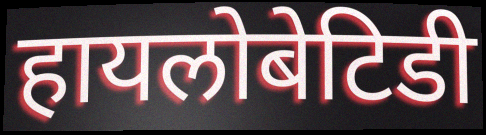
हायलोबेटिडी